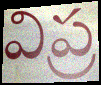
విప్ర